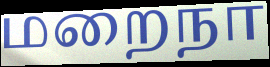
மறைநா